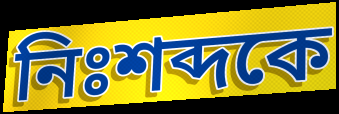
নিঃশব্দকে